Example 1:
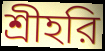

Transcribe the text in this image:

শ্রীহরি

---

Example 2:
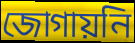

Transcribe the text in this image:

জোগায়নি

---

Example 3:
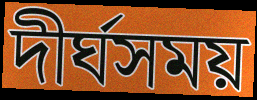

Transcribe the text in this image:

দীর্ঘসময়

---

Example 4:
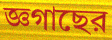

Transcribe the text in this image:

জ্ঞগাছের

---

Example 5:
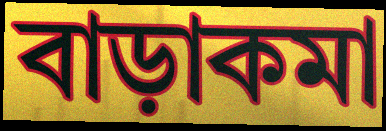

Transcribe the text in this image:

বাড়াকমা